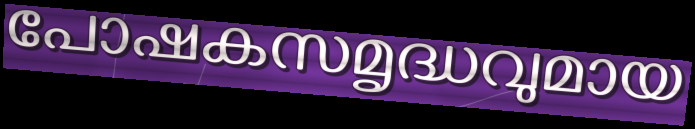
പോഷകസമൃദ്ധവുമായ